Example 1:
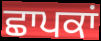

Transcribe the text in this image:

ਛਾਪਕਾਂ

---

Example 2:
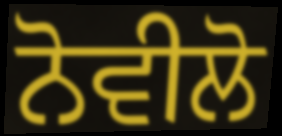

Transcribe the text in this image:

ਨੋਵੀਲੋ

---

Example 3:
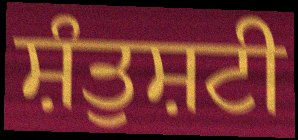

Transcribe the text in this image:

ਸ਼ੰਤੁਸ਼ਟੀ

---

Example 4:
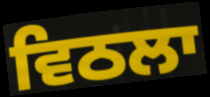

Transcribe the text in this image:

ਵਿਠਲਾ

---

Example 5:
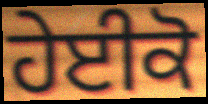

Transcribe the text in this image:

ਹੇਈਕੋ